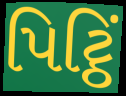
પિટ્ઠિં